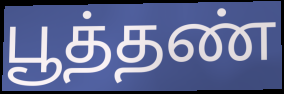
பூத்தண்